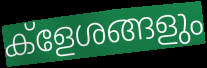
ക്ളേശങ്ങളും